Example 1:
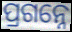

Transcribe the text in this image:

ପ୍ରଗନ୍ନେ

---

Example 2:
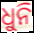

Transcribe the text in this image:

ଧୁନି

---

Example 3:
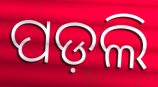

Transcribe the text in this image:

ପଡ଼ଲି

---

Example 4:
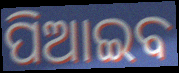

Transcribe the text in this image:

ପିଆଇବ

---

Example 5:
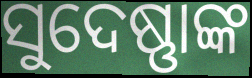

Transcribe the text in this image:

ସୁଦେଷ୍ଣାଙ୍କ